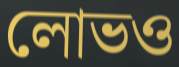
লোভও